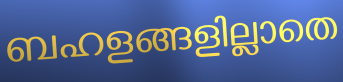
ബഹളങ്ങളില്ലാതെ